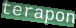
terapon